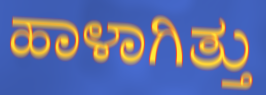
ಹಾಳಾಗಿತ್ತು